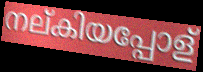
നല്കിയപ്പോള്